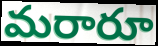
మరారూ